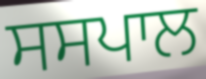
ਸਸਪਾਲ